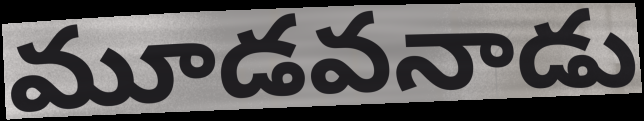
మూడవనాడు